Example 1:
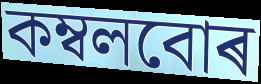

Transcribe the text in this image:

কম্বলবোৰ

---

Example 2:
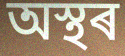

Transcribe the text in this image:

অস্থৰ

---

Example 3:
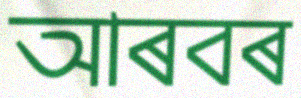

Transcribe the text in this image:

আৰবৰ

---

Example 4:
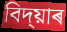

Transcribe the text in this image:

বিদ্য়াৰ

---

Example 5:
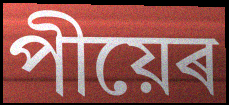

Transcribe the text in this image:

পীয়েৰ